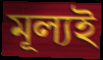
মূল্যই